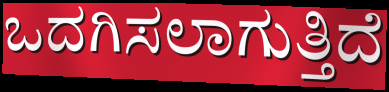
ಒದಗಿಸಲಾಗುತ್ತಿದೆ